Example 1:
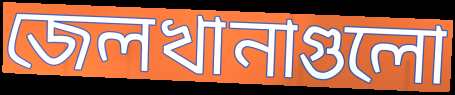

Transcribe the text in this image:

জেলখানাগুলো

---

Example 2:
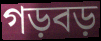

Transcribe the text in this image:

গড়বড়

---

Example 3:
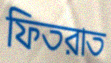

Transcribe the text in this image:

ফিতরাত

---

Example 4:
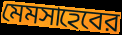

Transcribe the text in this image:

মেমসাহেবের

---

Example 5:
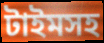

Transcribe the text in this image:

টাইমসহ